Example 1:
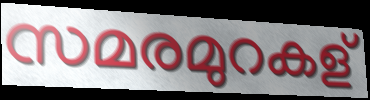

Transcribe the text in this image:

സമരമുറകള്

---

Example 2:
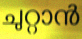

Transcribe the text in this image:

ചുറ്റാൻ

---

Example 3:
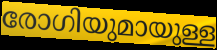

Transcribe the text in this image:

രോഗിയുമായുള്ള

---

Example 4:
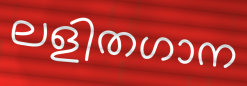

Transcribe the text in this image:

ലളിതഗാന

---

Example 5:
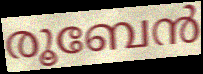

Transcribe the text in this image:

രൂബേൻ